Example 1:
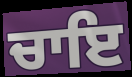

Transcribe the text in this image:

ਚਾਇ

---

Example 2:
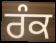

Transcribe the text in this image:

ਰੰਕ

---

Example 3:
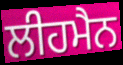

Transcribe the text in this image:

ਲੀਹਮੈਨ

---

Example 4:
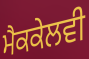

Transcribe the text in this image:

ਮੈਕਕੇਲਵੀ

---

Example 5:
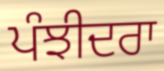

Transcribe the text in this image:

ਪੰਝੀਦਰਾ